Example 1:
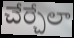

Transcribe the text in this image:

చేర్చేలా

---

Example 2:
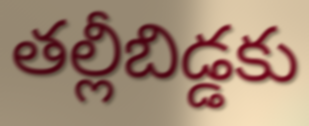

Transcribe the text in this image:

తల్లీబిడ్డకు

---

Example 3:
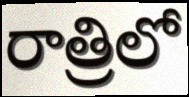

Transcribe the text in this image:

రాత్రిలో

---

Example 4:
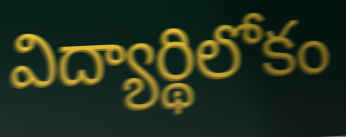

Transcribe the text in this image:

విద్యార్థిలోకం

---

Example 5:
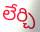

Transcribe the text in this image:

లేర్చి